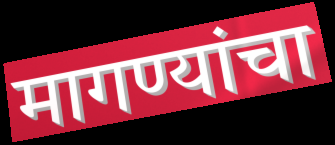
मागण्यांचा